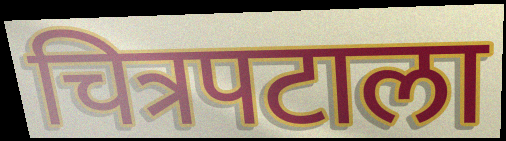
चित्रपटाला